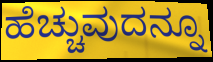
ಹೆಚ್ಚುವುದನ್ನೂ